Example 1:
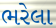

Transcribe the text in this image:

ભરેલા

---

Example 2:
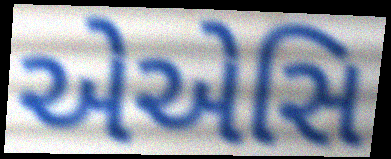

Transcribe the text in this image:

એએસિ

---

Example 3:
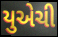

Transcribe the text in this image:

યુએચી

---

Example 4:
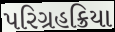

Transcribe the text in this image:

પરિગ્રહક્રિયા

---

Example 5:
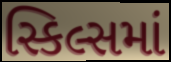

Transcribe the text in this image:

સ્કિલ્સમાં